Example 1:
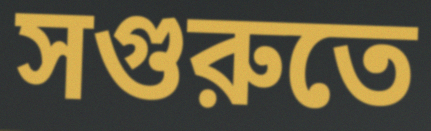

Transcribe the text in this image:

সগুরুতে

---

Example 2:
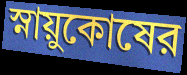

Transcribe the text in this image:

স্নায়ুকোষের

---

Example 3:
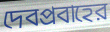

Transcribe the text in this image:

দেবপ্রবাহের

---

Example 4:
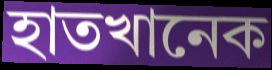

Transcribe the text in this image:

হাতখানেক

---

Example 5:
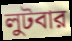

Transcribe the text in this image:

লুটবার